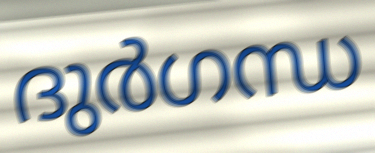
ദുർഗന്ധ